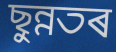
ছুন্নতৰ